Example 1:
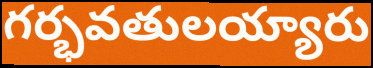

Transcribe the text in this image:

గర్భవతులయ్యారు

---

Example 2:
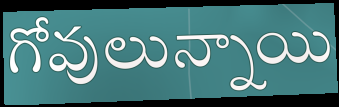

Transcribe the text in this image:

గోవులున్నాయి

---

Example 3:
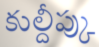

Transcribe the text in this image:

కుల్దీప్కు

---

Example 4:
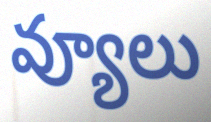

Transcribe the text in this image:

వ్యూలు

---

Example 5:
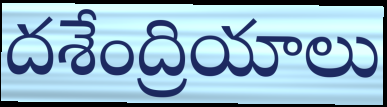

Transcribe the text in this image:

దశేంద్రియాలు